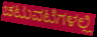
ಚಟುವಟಿಗಳಲ್ಲಿ